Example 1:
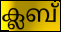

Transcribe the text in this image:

ക്ലബ്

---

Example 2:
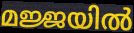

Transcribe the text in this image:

മജ്ജയിൽ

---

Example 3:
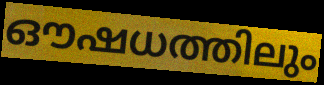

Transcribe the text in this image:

ഔഷധത്തിലും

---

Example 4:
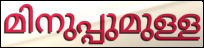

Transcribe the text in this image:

മിനുപ്പുമുള്ള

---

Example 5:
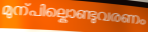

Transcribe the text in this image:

മുന്പില്കൊണ്ടുവരണം